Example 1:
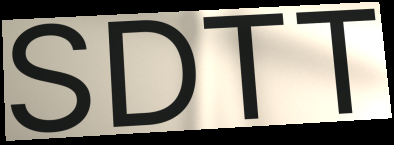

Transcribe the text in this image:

SDTT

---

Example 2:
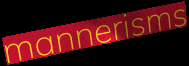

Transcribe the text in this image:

mannerisms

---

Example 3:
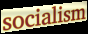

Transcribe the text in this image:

socialism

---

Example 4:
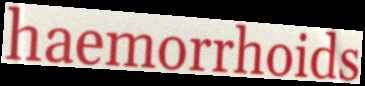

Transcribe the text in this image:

haemorrhoids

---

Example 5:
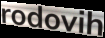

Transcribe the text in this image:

rodovih